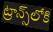
ట్రాన్స్‌లోకి